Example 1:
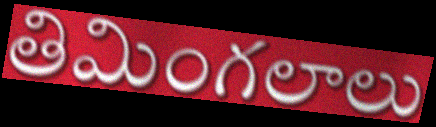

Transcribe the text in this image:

తిమింగలాలు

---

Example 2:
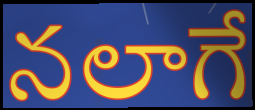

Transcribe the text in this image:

నలాగే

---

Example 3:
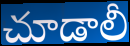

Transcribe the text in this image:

చూడాలీ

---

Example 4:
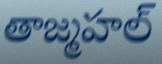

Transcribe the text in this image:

తాజ్మహల్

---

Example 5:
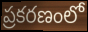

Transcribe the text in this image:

ప్రకరణంలో